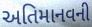
અતિમાનવની